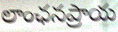
లాంఛనప్రాయ